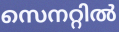
സെനറ്റിൽ